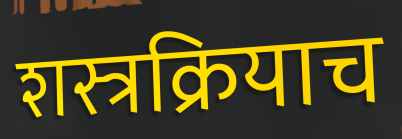
शस्त्रक्रियाच